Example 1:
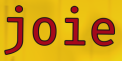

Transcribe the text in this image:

joie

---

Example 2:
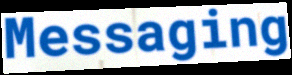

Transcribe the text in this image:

Messaging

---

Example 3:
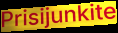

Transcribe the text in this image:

Prisijunkite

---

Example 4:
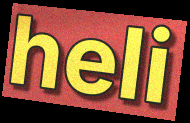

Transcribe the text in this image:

heli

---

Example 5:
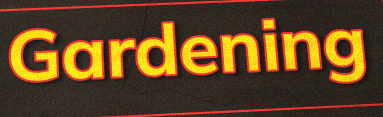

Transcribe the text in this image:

Gardening